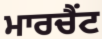
ਮਾਰਚੈਂਟ